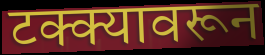
टक्क्यावरून